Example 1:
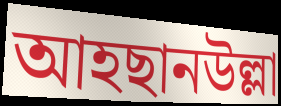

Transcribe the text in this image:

আহছানউল্লা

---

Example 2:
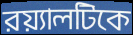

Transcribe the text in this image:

রয়্যালটিকে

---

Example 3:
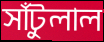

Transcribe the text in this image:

সাঁটুলাল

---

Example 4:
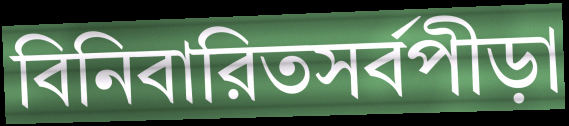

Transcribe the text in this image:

বিনিবারিতসর্বপীড়া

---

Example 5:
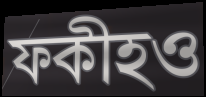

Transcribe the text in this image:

ফকীহও